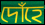
দোঁহে